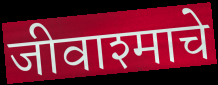
जीवाश्माचे